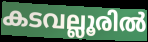
കടവല്ലൂരിൽ